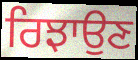
ਰਿਝਾਉਣ